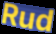
Rud